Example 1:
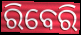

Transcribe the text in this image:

ରିବେରି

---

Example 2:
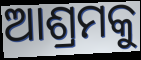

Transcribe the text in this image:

ଆଶ୍ରମକୁ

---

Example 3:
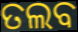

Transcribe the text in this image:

ତଲବ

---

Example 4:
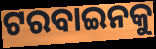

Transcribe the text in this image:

ଟରବାଇନକୁ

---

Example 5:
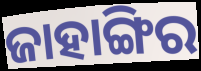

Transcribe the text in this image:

ଜାହାଙ୍ଗିର